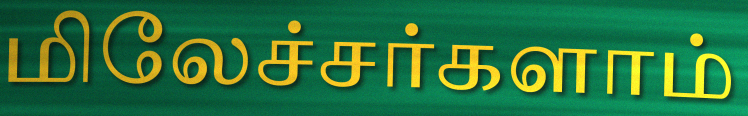
மிலேச்சர்களாம்